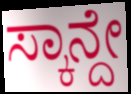
ಸ್ಕಾನ್ದೇ